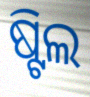
ଷ୍ଟିଲ